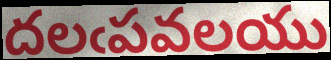
దలఁపవలయు